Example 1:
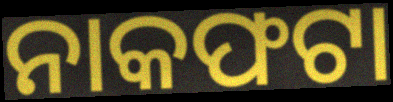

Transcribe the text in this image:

ନାକଫଟା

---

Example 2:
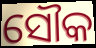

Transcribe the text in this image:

ସୌକ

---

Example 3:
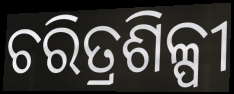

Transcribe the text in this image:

ଚରିତ୍ରଶିଳ୍ପୀ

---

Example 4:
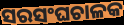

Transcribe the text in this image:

ସରସଂଘଚାଳକ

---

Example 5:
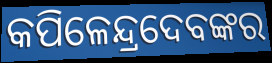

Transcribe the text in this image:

କପିଳେନ୍ଦ୍ରଦେବଙ୍କର